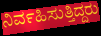
ನಿರ್ವಹಿಸುತ್ತಿದ್ದರು